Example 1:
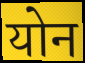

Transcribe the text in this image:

योन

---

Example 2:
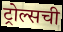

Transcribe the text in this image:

ट्रोल्सची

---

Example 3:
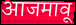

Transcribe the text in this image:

आजमावू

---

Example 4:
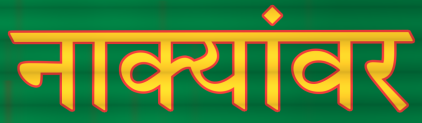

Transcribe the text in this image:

नाक्यांवर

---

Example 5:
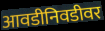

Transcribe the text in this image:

आवडीनिवडीवर